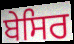
ਬੇਸਿਰ